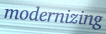
modernizing